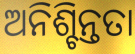
ଅନିଶ୍ଚିନ୍ତତା